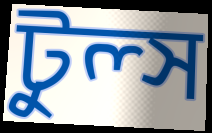
টুল্স